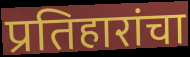
प्रतिहारांचा